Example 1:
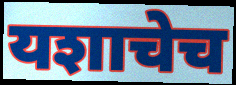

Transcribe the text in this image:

यशाचेच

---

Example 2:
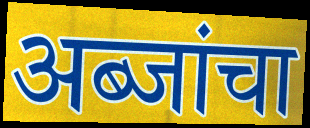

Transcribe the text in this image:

अब्जांचा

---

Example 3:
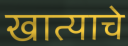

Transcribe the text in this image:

खात्याचे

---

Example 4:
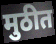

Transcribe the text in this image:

मुठीत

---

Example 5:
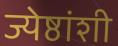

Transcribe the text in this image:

ज्येष्ठांशी